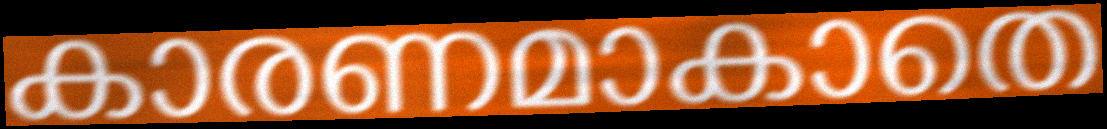
കാരണമാകാതെ